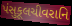
પંસુકૂલચીવરાનિ